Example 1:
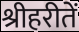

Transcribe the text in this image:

श्रीहरीतें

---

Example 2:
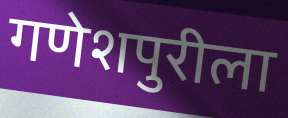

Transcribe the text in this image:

गणेशपुरीला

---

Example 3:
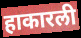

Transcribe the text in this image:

हाकारली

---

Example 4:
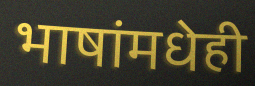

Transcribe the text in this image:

भाषांमधेही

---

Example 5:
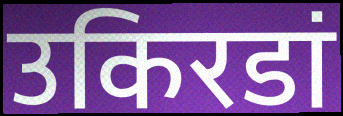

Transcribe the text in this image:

उकिरडां